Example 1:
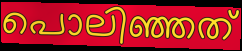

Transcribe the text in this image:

പൊലിഞ്ഞത്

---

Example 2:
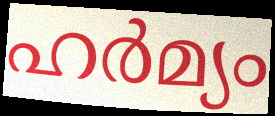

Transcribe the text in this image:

ഹർമ്യം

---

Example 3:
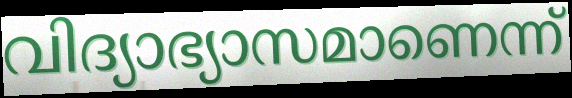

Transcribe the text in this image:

വിദ്യാഭ്യാസമാണെന്ന്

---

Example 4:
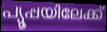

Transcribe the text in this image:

പ്യൂപ്പയിലേക്ക്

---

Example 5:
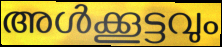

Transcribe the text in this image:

അൾക്കൂട്ടവും